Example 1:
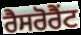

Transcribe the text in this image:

ਰੈਸਰੋਰੈਂਟ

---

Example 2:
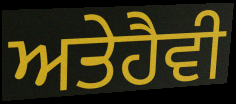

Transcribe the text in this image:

ਅਤੇਹੈਵੀ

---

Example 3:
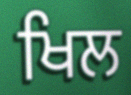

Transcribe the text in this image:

ਖਿਲ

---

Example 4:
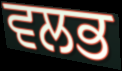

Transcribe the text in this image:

ਵਲਭ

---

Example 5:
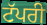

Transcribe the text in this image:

ਟੱਪਰੀ